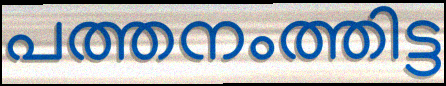
പത്തനംത്തിട്ട